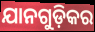
ଯାନଗୁଡ଼ିକର